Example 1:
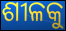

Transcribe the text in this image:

ଶୀଳକୁ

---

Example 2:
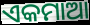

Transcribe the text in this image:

ଏକମାଆ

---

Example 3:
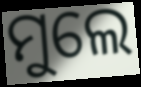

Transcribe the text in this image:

ମୁଲେ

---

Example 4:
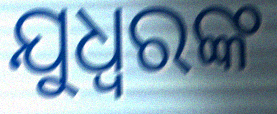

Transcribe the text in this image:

ଯୁଧ୍ଵରଙ୍କ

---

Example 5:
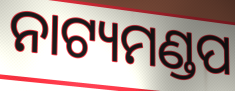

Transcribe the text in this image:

ନାଟ୍ୟମଣ୍ଡପ